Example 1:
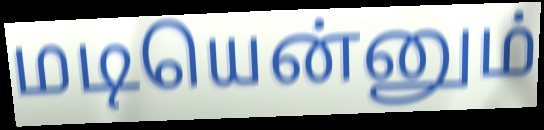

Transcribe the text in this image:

மடியென்னும்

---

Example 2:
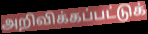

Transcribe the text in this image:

அறிவிக்கப்பட்டுக்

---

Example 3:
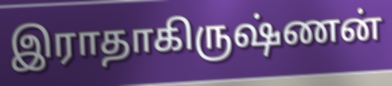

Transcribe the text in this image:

இராதாகிருஷ்ணன்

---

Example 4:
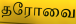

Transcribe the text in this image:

தரோவை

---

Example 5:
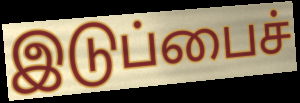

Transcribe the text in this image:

இடுப்பைச்